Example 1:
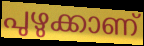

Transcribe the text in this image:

പുഴുക്കാണ്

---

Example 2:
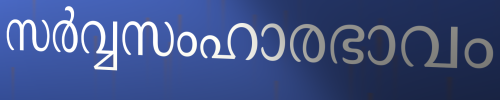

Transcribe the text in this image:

സർവ്വസംഹാരഭാവം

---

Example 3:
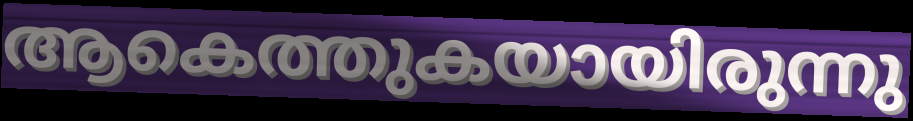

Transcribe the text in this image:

ആകെത്തുകയായിരുന്നു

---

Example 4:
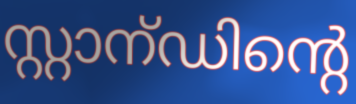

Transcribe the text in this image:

സ്റ്റാന്ഡിന്റെ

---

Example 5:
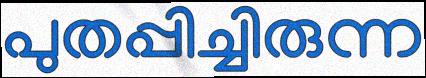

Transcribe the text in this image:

പുതപ്പിച്ചിരുന്ന